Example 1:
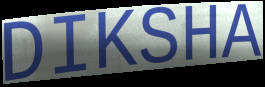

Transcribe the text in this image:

DIKSHA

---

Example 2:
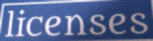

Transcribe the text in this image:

licenses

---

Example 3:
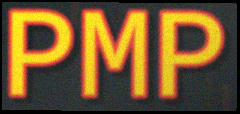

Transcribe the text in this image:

PMP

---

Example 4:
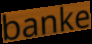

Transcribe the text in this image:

banke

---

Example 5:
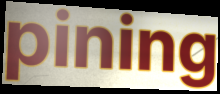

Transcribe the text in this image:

pining